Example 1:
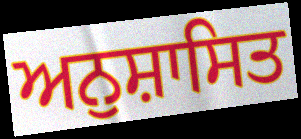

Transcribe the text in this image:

ਅਨੁਸ਼ਾਸਿਤ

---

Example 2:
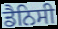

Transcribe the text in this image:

ਡੈਨਿਸੀ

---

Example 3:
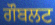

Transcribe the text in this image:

ਗੌਬਲਟ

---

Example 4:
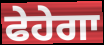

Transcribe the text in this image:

ਫੇਹੇਗਾ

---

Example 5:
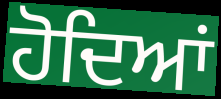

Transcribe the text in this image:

ਹੋਦਿਆਂ